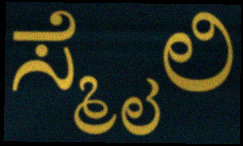
ಸ್ಮೈಲಿ